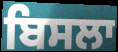
ਬਿਸਲਾ